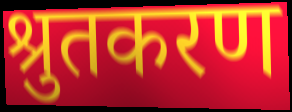
श्रुतकरण